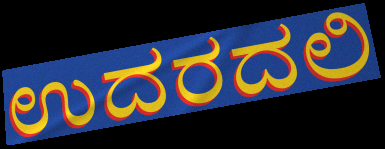
ಉದರದಲಿ